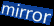
mirror